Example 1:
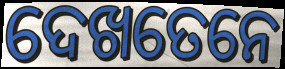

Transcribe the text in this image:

ଦେଖତେନେ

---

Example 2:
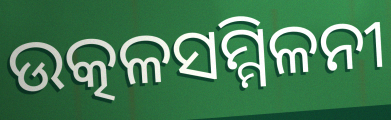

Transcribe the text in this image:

ଉତ୍କଳସମ୍ମିଳନୀ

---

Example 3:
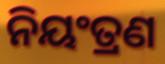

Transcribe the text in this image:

ନିୟଂତ୍ରଣ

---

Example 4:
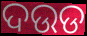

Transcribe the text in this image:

ଦଉଡ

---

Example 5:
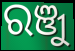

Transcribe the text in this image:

ରଞ୍ଜୁ